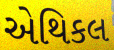
એથિકલ